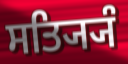
ਸਤ੍ਯ੍ਯਿੰ